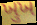
ખુખ